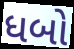
ધબો